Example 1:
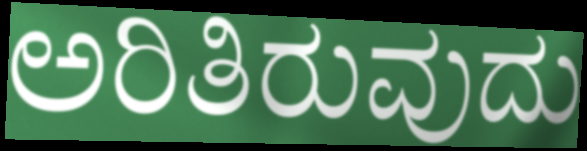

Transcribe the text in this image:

ಅರಿತಿರುವುದು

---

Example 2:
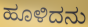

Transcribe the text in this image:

ಹೂಳಿದನು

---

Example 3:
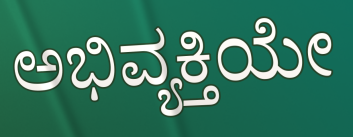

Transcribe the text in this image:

ಅಭಿವ್ಯಕ್ತಿಯೇ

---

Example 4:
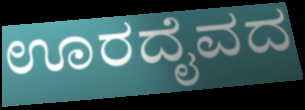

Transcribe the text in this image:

ಊರದೈವದ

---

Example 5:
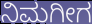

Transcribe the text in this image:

ನಿಮಗೀಗ